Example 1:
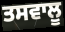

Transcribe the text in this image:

ਤਸਵਾਲੂ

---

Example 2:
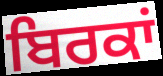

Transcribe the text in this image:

ਬਿਰਕਾਂ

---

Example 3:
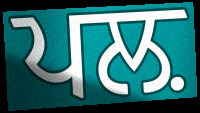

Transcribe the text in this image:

ਪਲ਼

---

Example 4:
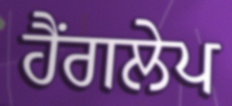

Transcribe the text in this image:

ਹੈਂਗਲੇਪ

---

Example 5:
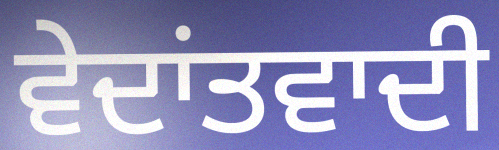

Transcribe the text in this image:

ਵੇਦਾਂਤਵਾਦੀ